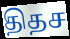
திதச